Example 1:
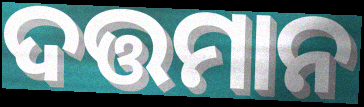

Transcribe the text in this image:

ଦତ୍ତମାନ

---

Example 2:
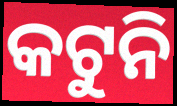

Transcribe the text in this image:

କଟୁନି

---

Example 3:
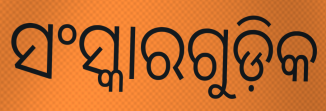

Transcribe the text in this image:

ସଂସ୍କାରଗୁଡ଼ିକ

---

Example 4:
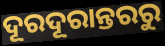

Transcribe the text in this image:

ଦୂରଦୂରାନ୍ତରରୁ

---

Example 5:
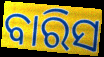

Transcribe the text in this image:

ବାରିସ